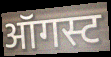
ऑगस्ट